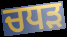
ਚਧੜ